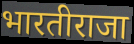
भारतीराजा